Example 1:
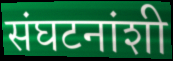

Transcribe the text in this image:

संघटनांशी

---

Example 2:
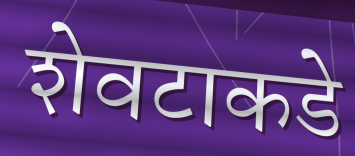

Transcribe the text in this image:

शेवटाकडे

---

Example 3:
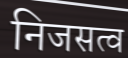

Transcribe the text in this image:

निजसत्व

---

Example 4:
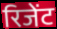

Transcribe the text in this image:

रिजेंट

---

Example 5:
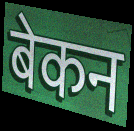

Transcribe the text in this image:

बेकन